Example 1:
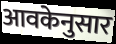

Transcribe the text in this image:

आवकेनुसार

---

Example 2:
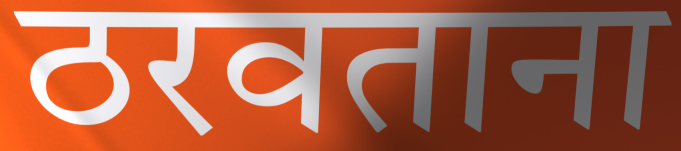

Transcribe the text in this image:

ठरवताना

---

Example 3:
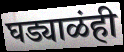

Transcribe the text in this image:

घड्याळंही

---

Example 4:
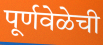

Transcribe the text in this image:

पूर्णवेळेची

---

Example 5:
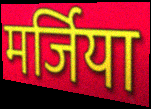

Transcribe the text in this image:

मर्जिया